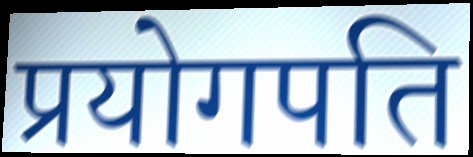
प्रयोगपति